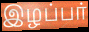
இழப்பர்